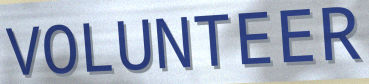
VOLUNTEER